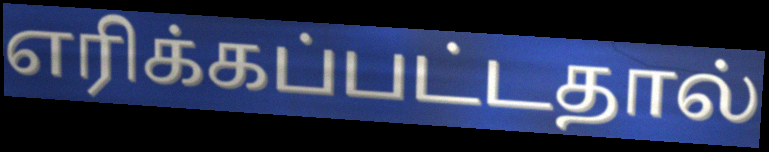
எரிக்கப்பட்டதால்